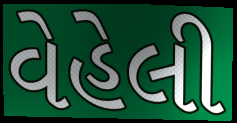
વેહેલી